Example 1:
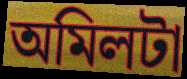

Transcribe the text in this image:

অমিলটা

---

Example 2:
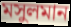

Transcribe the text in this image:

মসুলমান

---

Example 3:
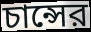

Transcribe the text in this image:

চান্সের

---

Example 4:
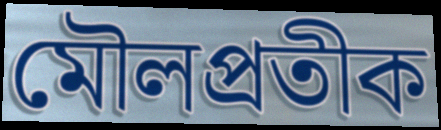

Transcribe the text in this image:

মৌলপ্রতীক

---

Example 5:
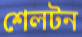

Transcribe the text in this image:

শেলটন